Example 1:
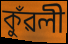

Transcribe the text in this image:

কুঁৱলী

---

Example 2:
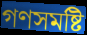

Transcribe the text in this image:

গণসমষ্টি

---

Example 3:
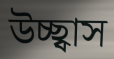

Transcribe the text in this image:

উচ্ছ্বাস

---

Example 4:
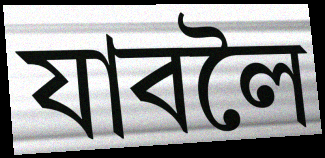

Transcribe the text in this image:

যাবলৈ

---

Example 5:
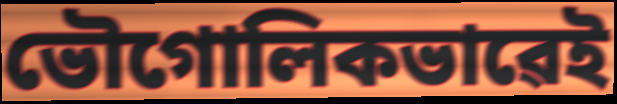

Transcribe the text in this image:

ভৌগোলিকভাৱেই